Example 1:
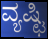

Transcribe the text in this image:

ವ್ಯಷ್ಟಿ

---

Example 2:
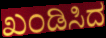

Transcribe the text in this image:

ಖಂಡಿಸಿದ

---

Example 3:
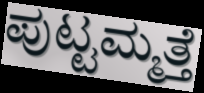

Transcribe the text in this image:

ಪುಟ್ಟಮ್ಮತ್ತೆ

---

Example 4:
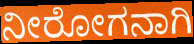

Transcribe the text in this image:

ನೀರೋಗನಾಗಿ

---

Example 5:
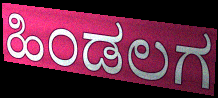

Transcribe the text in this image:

ಹಿಂಡಲಗ